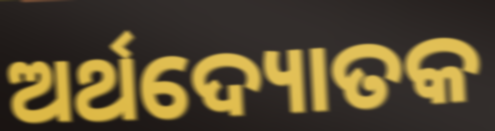
ଅର୍ଥଦ୍ୟୋତକ